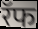
रॅफ